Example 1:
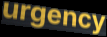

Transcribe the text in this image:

urgency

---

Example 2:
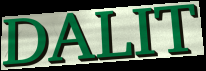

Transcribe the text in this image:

DALIT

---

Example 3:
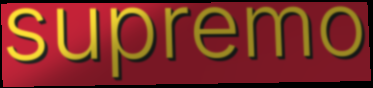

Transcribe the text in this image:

supremo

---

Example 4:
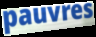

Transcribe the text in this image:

pauvres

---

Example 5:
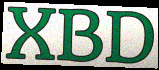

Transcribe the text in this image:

XBD